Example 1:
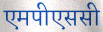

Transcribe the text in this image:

एमपीएससी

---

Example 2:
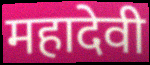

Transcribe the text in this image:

महादेवी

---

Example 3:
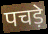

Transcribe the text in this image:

पचड़े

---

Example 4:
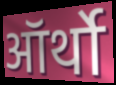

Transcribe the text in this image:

ऑर्थो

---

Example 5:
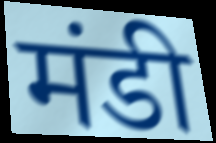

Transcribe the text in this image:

मंडी